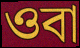
ওবা